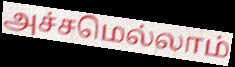
அச்சமெல்லாம்